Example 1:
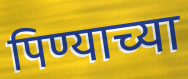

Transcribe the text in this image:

पिण्याच्या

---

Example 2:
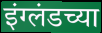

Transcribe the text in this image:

इंग्‍लंडच्या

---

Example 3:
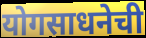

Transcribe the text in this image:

योगसाधनेची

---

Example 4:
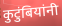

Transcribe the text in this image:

कुटुंबियांनी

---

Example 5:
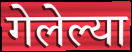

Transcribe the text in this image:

गेलेल्या